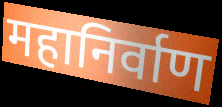
महानिर्वाण